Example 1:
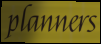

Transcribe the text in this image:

planners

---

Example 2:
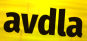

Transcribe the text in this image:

avdla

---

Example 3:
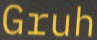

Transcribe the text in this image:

Gruh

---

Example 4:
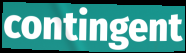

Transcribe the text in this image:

contingent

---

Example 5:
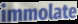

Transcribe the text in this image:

immolate